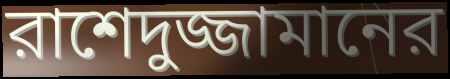
রাশেদুজ্জামানের